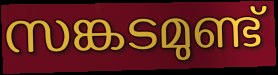
സങ്കടമുണ്ട്